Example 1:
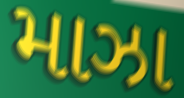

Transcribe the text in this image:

માઝા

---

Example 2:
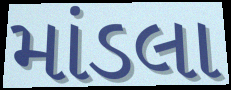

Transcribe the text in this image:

માંડલા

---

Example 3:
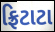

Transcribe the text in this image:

ફ્રિટાટા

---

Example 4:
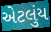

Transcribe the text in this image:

એટલુંય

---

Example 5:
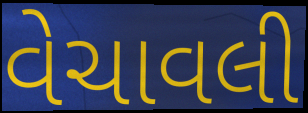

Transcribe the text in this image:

વેચાવલી